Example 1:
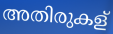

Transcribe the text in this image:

അതിരുകള്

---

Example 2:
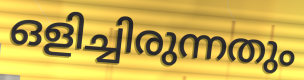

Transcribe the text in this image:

ഒളിച്ചിരുന്നതും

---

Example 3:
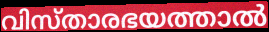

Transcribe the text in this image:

വിസ്താരഭയത്താൽ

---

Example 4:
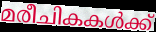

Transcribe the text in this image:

മരീചികകൾക്ക്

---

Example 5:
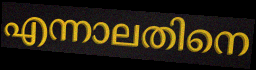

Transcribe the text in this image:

എന്നാലതിനെ